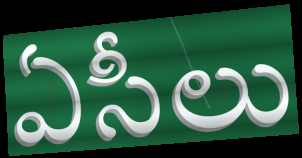
ఏసీలు